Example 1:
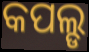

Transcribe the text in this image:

କପଲ୍ଡ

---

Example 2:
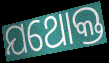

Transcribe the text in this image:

ଯଥୋକ୍ତ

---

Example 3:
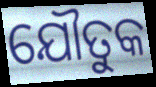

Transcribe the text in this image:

ଯୌତୁକ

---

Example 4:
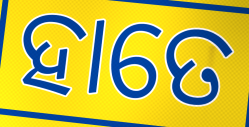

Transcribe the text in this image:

ହାତେ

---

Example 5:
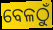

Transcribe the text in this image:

ବେଳଠୁଁ